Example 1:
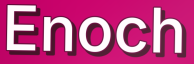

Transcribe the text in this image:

Enoch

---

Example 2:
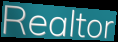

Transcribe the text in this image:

Realtor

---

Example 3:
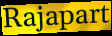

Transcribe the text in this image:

Rajapart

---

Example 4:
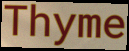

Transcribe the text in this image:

Thyme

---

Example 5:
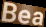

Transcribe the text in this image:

Bea